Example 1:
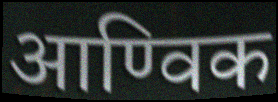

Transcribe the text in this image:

आण्विक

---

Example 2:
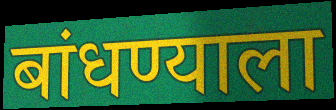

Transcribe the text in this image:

बांधण्याला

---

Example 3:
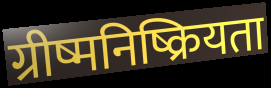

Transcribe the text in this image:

ग्रीष्मनिष्क्रियता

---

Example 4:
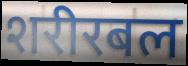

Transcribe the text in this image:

शरीरबल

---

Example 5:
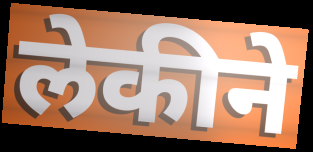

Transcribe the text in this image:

लेकीने